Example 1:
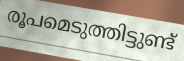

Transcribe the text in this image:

രൂപമെടുത്തിട്ടുണ്ട്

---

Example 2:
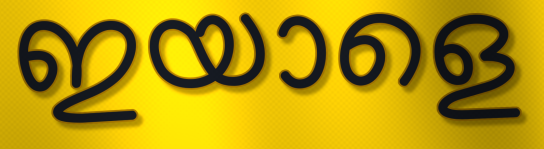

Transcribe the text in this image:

ഇയാളെ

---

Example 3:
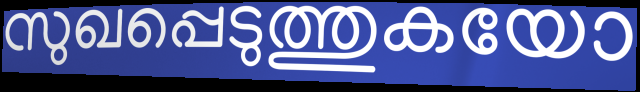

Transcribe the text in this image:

സുഖപ്പെടുത്തുകയോ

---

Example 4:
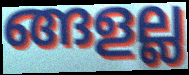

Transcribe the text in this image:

ങ്ങളല്ല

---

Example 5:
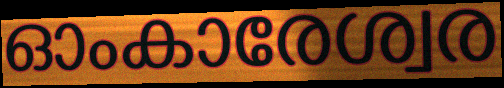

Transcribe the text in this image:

ഓംകാരേശ്വര